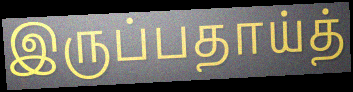
இருப்பதாய்த்